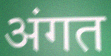
अंगत